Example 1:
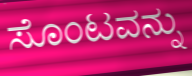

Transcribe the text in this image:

ಸೊಂಟವನ್ನು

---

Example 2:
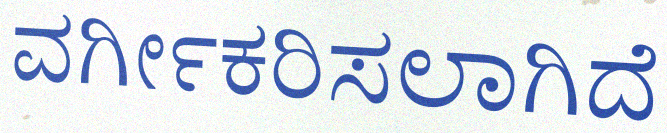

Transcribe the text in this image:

ವರ್ಗೀಕರಿಸಲಾಗಿದೆ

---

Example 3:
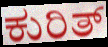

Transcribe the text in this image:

ಕುರಿತ್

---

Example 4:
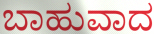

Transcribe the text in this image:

ಬಾಹುವಾದ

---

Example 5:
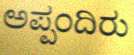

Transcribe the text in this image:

ಅಪ್ಪಂದಿರು